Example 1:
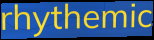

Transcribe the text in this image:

rhythemic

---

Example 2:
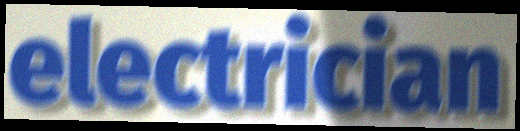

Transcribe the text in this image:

electrician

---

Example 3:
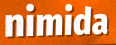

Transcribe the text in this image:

nimida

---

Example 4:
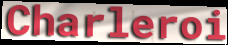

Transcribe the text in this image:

Charleroi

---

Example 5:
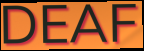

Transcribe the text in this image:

DEAF